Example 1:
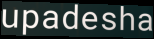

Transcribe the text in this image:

upadesha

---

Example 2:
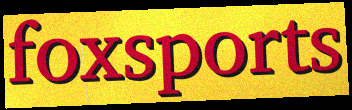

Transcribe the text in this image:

foxsports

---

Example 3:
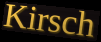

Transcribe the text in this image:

Kirsch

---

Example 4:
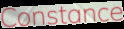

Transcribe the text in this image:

Constance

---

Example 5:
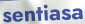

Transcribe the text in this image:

sentiasa